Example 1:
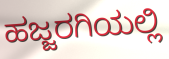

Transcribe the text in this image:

ಹಜ್ಜರಗಿಯಲ್ಲಿ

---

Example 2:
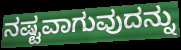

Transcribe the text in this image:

ನಷ್ಟವಾಗುವುದನ್ನು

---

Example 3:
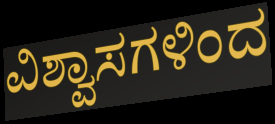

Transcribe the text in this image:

ವಿಶ್ವಾಸಗಳಿಂದ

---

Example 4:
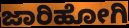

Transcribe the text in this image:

ಜಾರಿಹೋಗಿ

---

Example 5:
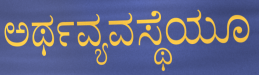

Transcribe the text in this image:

ಅರ್ಥವ್ಯವಸ್ಥೆಯೂ